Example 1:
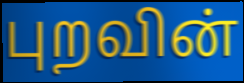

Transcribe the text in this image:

புறவின்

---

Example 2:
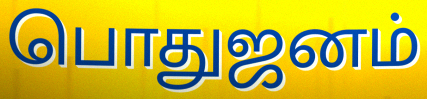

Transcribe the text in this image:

பொதுஜனம்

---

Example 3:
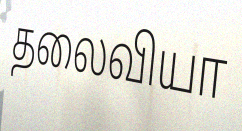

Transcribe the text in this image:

தலைவியா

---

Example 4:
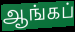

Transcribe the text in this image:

ஆங்கப்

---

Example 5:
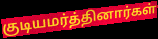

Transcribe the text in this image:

குடியமர்த்தினார்கள்